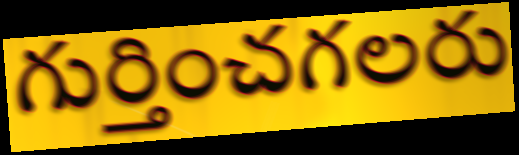
గుర్తించగలరు